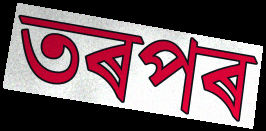
তৰপৰ